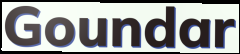
Goundar